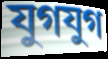
যুগযুগ